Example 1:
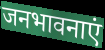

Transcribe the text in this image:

जनभावनाएं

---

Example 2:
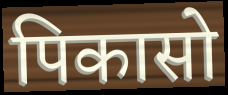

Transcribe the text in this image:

पिकासो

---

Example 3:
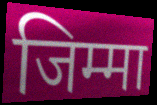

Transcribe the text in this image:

जिम्मा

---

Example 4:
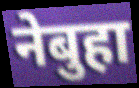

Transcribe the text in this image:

नेबुहा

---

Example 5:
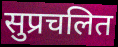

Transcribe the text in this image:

सुप्रचलित